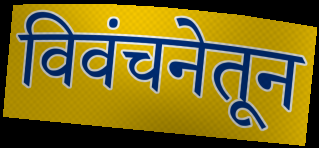
विवंचनेतून